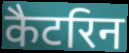
कैटरिन